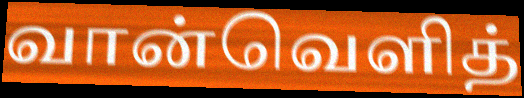
வான்வெளித்